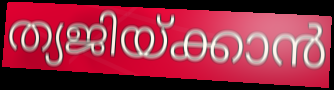
ത്യജിയ്ക്കാൻ